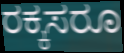
ರಕ್ಕಸರೂ